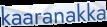
kaaranakka